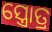
ସ୍ତ୍ରୋତ୍ର